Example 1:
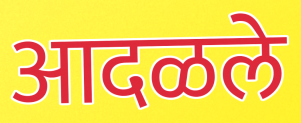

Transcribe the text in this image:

आदळले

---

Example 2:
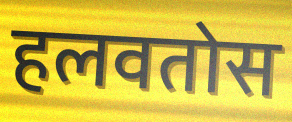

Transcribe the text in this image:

हलवतोस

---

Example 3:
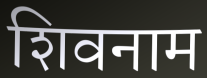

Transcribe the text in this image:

शिवनाम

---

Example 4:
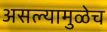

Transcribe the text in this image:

असल्यामुळेच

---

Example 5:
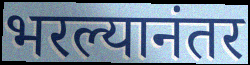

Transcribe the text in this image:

भरल्यानंतर